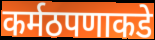
कर्मठपणाकडे